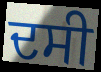
ਦਸੀ